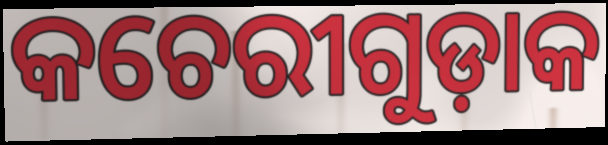
କଚେରୀଗୁଡ଼ାକ